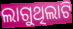
ଲାଗୁଥିଲାଟି